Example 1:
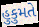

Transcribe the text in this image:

હુકુમતે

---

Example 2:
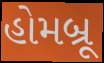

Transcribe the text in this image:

હોમબ્રૂ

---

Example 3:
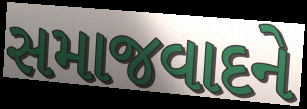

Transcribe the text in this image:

સમાજવાદને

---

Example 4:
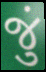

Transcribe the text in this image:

જું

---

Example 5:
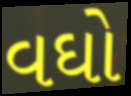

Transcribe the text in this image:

વઘો